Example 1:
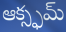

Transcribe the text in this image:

ఆక్స్ఫమ్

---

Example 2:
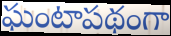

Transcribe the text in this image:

ఘంటాపథంగా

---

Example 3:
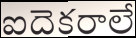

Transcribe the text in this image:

ఐదెకరాలే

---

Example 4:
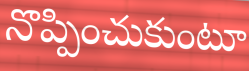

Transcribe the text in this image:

నొప్పించుకుంటూ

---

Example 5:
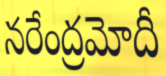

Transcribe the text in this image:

నరేంద్రమోదీ